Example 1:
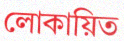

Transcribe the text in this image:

লোকায়িত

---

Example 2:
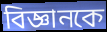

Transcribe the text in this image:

বিজ্ঞানকে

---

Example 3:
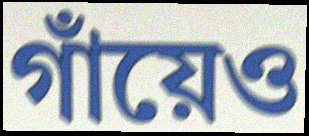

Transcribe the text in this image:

গাঁয়েও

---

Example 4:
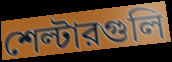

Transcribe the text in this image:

শেল্টারগুলি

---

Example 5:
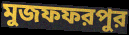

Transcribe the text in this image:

মুজফফরপুর